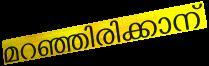
മറഞ്ഞിരിക്കാന്